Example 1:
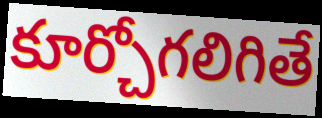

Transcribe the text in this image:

కూర్చోగలిగితే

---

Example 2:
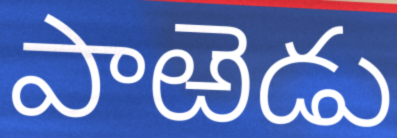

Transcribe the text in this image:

పాఱెడు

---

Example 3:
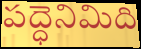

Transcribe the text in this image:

పద్ధెనిమిది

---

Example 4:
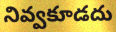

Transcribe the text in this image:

నివ్వకూడదు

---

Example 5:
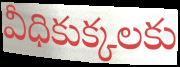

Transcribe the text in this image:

వీధికుక్కలకు